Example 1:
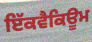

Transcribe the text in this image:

ਇੱਕਵੈਕਿਊਮ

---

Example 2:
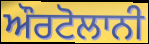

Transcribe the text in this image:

ਔਰਟੋਲਾਨੀ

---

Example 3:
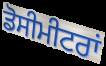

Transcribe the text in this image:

ਡੋਸੀਮੀਟਰਾਂ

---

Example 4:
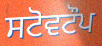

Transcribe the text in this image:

ਸਟੋਵਟੌਪ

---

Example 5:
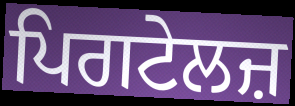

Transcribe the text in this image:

ਪਿਗਟੇਲਜ਼